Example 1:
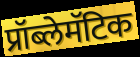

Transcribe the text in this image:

प्रॉब्लेमॅटिक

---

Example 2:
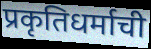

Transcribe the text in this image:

प्रकृतिधर्माची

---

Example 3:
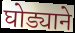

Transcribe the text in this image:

घोड्याने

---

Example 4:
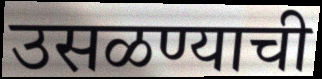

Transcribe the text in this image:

उसळण्याची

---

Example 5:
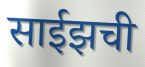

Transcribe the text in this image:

साईझची